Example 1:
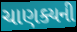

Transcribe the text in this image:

ચાણક્યની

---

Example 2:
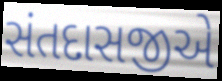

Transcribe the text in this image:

સંતદાસજીએ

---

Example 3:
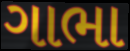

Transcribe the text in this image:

ગાભા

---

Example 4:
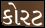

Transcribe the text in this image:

કોરટ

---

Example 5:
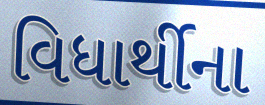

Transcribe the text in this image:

વિધાર્થીના